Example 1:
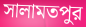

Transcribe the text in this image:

সালামতপুর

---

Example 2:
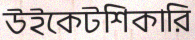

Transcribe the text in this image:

উইকেটশিকারি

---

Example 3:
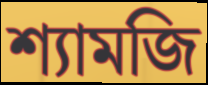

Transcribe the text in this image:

শ্যামজি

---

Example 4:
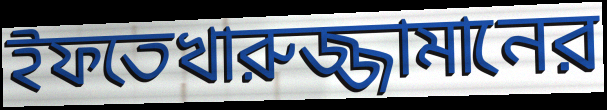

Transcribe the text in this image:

ইফতেখারুজ্জামানের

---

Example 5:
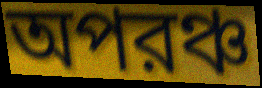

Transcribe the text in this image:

অপরঞ্চ